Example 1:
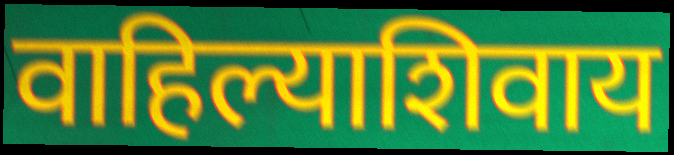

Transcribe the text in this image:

वाहिल्याशिवाय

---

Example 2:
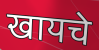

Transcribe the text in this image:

खायचे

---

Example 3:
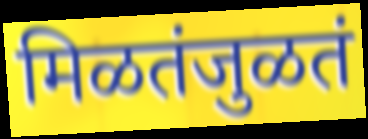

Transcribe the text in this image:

मिळतंजुळतं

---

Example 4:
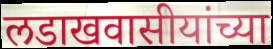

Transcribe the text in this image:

लडाखवासीयांच्या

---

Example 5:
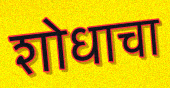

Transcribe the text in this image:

शोधाचा